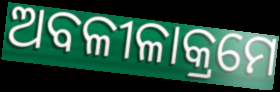
ଅବଳୀଳାକ୍ରମେ